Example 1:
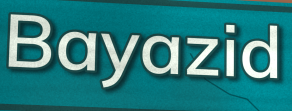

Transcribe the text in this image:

Bayazid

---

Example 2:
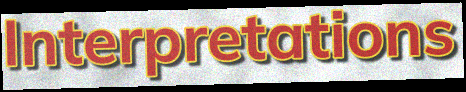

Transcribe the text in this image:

Interpretations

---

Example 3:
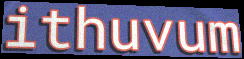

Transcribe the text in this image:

ithuvum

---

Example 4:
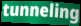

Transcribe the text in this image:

tunneling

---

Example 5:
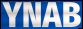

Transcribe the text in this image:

YNAB